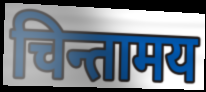
चिन्तामय